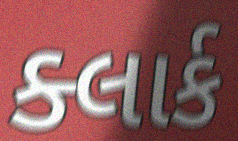
ક્લાર્ક